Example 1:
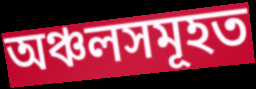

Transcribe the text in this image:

অঞ্চলসমূহত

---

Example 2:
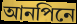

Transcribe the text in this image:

আনপিনে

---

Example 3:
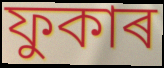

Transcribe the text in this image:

ফুকাৰ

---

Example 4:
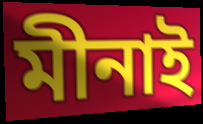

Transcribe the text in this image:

মীনাই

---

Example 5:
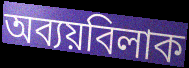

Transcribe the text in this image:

অব্যয়বিলাক